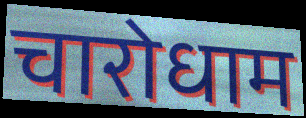
चारोधाम